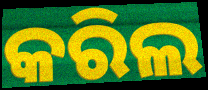
କରିଲ